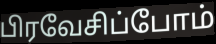
பிரவேசிப்போம்